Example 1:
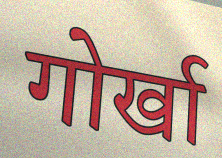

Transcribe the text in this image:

गोर्खा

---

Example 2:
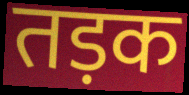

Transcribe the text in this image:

तड़क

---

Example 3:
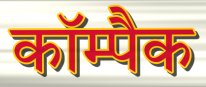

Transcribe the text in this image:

कॉम्पैक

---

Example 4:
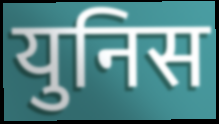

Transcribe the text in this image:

युनिस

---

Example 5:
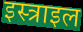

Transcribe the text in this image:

इस्त्राइल